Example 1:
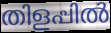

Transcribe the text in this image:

തിളപ്പിൽ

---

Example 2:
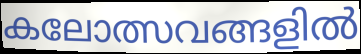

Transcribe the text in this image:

കലോത്സവങ്ങളിൽ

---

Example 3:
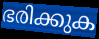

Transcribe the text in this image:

ഭരിക്കുക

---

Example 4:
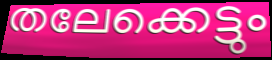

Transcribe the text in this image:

തലേക്കെട്ടും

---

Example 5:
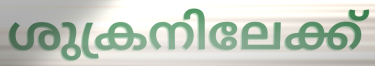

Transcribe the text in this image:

ശുക്രനിലേക്ക്